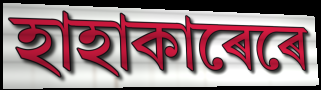
হাহাকাৰেৰে